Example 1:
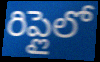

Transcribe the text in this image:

రిప్లైలో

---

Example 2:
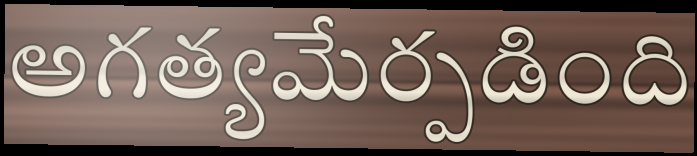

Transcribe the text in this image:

అగత్యమేర్పడింది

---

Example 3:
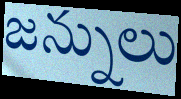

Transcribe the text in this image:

జన్నులు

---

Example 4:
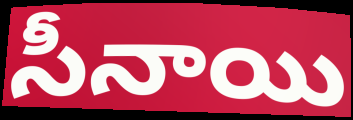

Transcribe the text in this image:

సీనాయి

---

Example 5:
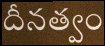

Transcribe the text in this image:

దీనత్వం